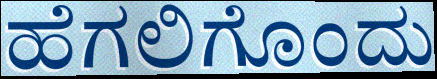
ಹೆಗಲಿಗೊಂದು